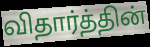
விதார்த்தின்